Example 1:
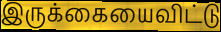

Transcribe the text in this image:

இருக்கையைவிட்டு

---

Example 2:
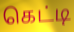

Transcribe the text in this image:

கெட்டி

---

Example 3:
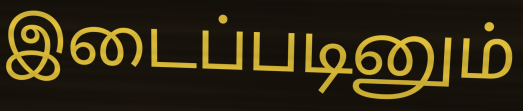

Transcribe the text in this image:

இடைப்படினும்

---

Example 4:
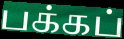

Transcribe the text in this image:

பக்கப்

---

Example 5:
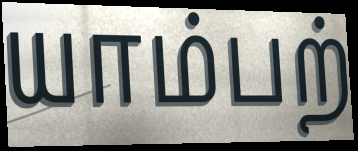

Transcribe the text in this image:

யாம்பற்